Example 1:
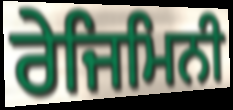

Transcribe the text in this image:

ਰੇਜਿਮਿਨੀ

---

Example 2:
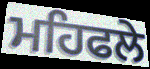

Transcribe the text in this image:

ਮਹਿਫਲੇ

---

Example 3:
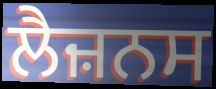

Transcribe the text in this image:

ਲੈਜ਼ਨਸ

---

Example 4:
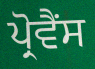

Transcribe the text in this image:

ਪ੍ਰੋਵੈਂਸ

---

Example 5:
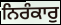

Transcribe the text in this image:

ਨਿਰੰਕਾਰੁ